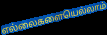
எல்லைகளையெல்லாம்